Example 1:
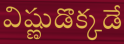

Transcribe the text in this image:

విష్ణుడొక్కడే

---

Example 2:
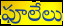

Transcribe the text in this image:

ఫూలేలు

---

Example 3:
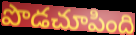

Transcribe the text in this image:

పొడచూపింది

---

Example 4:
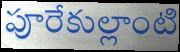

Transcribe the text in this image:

పూరేకుల్లాంటి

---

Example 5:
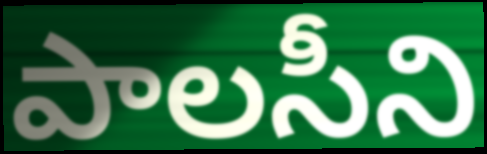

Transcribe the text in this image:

పాలసీని